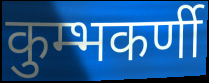
कुम्भकर्णी